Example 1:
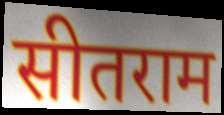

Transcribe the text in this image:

सीतराम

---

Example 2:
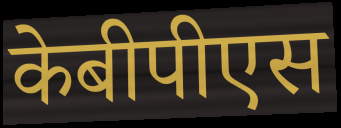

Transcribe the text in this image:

केबीपीएस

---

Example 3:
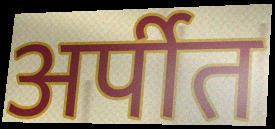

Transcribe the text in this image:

अर्पीत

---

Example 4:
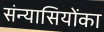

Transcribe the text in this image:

संन्यासियोंका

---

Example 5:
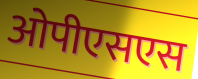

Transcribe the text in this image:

ओपीएसएस